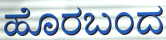
ಹೊರಬಂದ